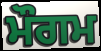
ਮੌਗਮ